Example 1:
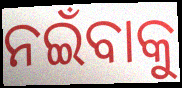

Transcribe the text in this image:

ନଇଁବାକୁ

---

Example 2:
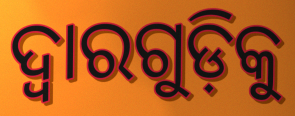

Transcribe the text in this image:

ଦ୍ୱାରଗୁଡ଼ିକୁ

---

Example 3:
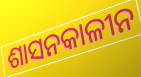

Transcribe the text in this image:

ଶାସନକାଳୀନ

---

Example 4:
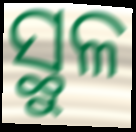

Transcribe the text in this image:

ସ୍ଥୁଳ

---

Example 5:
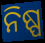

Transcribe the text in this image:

ନିଷ୍ପ